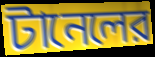
টানেলের